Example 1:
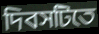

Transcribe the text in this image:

দিবসটিতে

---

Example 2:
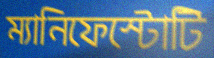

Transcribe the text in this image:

ম্যানিফেস্টোটি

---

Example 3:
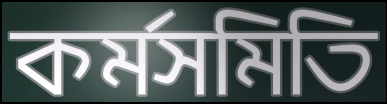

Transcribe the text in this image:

কর্মসমিতি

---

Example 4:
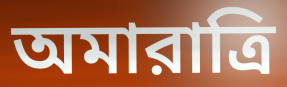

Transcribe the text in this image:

অমারাত্রি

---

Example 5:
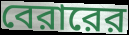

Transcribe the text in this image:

বেরারের